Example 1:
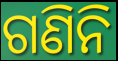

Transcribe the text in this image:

ଗଣିନି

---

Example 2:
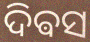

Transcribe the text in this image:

ଦିଵସ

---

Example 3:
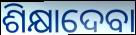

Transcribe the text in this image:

ଶିକ୍ଷାଦେବା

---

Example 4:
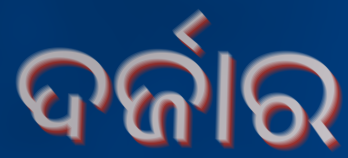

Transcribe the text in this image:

ଦର୍ଜାର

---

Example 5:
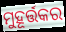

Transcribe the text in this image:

ମୁହୂର୍ତ୍ତକର